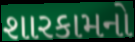
શારકામનો